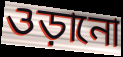
ওড়ানো